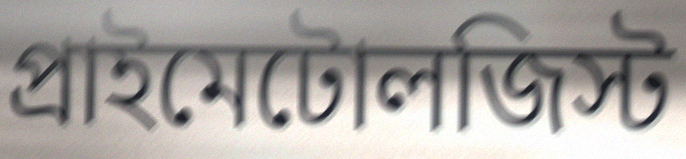
প্রাইমেটোলজিস্ট